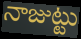
నాజుట్టు